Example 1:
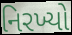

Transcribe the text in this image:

નિરખ્યો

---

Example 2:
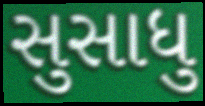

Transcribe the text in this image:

સુસાધુ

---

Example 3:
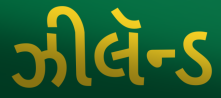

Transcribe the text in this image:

ઝીલૅન્ડ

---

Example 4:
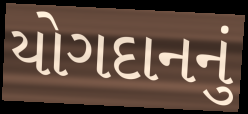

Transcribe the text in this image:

યોગદાનનું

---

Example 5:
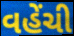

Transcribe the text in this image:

વહેંચી